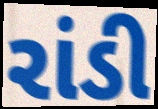
રાંડી